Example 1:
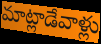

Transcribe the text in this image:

మాట్లాడేవాళ్లు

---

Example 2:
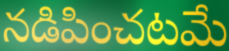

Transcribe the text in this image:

నడిపించటమే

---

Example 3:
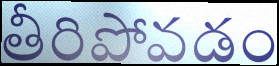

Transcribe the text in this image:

తీరిపోవడం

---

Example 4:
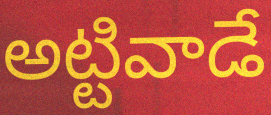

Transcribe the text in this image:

అట్టివాడే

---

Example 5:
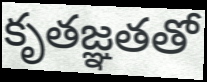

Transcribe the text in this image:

కృతజ్ఞతతో